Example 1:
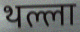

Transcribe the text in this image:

थल्ला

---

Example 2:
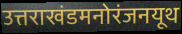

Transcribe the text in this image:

उत्तराखंडमनोरंजनयूथ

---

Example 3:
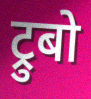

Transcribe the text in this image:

ट्रुबो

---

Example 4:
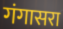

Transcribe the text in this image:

गंगासरा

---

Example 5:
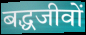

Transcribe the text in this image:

बद्धजीवों